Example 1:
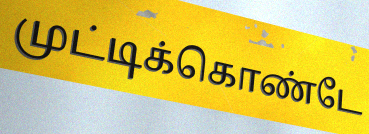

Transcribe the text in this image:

முட்டிக்கொண்டே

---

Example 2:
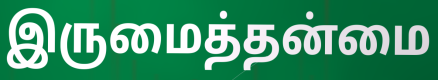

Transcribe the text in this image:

இருமைத்தன்மை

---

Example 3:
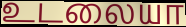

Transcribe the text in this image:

உடலையா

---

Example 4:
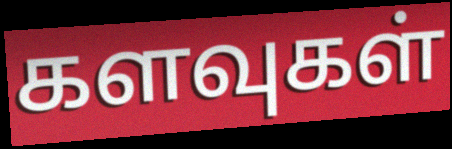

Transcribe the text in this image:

களவுகள்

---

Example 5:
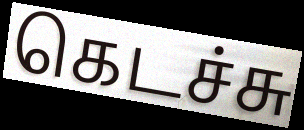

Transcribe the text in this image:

கெடச்சு